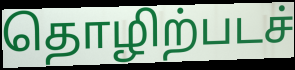
தொழிற்படச்